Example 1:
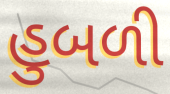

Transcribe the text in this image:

હુબળી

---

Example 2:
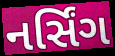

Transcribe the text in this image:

નર્સિંગ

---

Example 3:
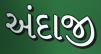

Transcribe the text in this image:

અંદાજી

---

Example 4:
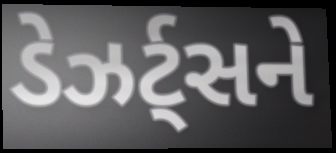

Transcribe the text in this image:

ડેઝર્ટ્સને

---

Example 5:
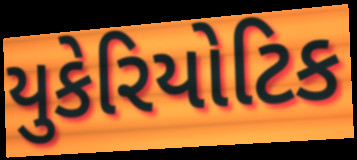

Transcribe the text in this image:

યુકેરિયોટિક